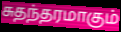
சுதந்தரமாகும்